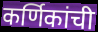
कर्णिकांची